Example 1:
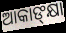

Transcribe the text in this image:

ଆକାଙ୍କ୍ଷା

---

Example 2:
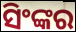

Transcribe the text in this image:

ସିଂଙ୍କର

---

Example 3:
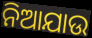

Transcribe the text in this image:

ନିଆଯାଉ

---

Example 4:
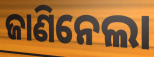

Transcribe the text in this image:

ଜାଣିନେଲା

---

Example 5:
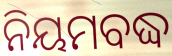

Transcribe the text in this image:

ନିୟମବଦ୍ଧ